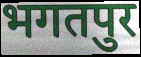
भगतपुर